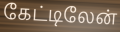
கேட்டிலேன்